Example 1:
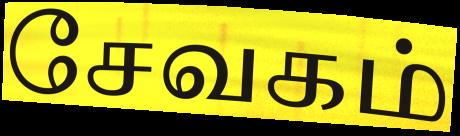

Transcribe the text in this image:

சேவகம்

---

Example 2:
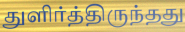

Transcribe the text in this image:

துளிர்த்திருந்தது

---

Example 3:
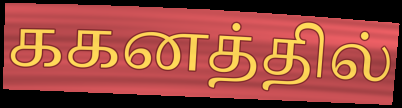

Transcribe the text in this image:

ககனத்தில்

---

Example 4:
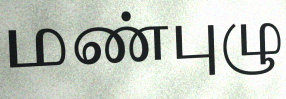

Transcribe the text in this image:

மண்புழு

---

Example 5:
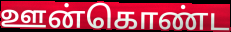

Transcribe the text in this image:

ஊன்கொண்ட